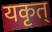
यकृत्